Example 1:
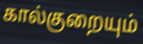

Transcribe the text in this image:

கால்குறையும்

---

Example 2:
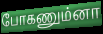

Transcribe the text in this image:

போகணும்னா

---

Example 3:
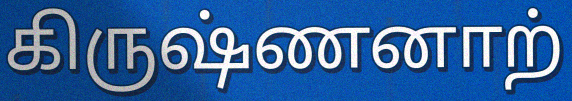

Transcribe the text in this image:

கிருஷ்ணனாற்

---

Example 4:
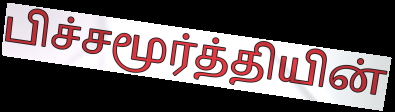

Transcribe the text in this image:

பிச்சமூர்த்தியின்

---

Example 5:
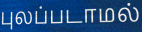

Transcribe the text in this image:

புலப்படாமல்